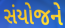
સંયોજને